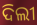
ଦିଲୀ